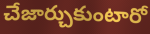
చేజార్చుకుంటారో